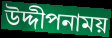
উদ্দীপনাময়